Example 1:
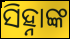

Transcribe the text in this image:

ସିହ୍ନାଙ୍କ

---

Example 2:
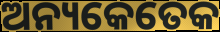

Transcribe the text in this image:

ଅନ୍ୟକେତେକ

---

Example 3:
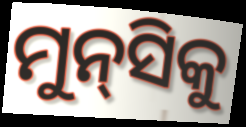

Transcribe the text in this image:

ମୁନ୍‌ସିକୁ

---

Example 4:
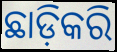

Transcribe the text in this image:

ଛାଡ଼ିକରି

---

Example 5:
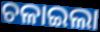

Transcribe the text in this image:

ଚଳାଇଲା